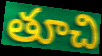
తూచి